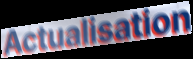
Actualisation